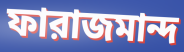
ফারাজমান্দ